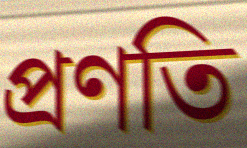
প্ৰণতি